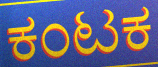
ಕಂಟಕ